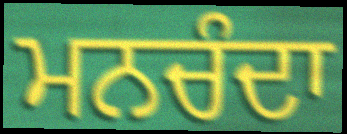
ਮਨਚੰਦਾ